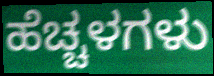
ಹೆಚ್ಚಳಗಳು